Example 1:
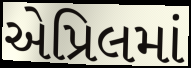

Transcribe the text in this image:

એપ્રિલમાં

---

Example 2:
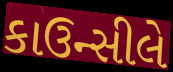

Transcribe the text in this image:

કાઉન્સીલે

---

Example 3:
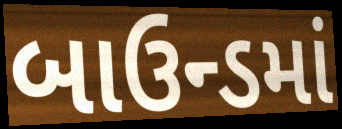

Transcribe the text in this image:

બાઉન્ડમાં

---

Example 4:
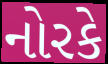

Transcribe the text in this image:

નોરકે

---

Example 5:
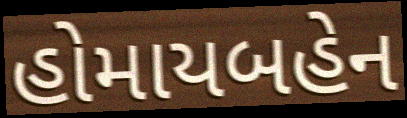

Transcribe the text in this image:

હોમાયબહેન